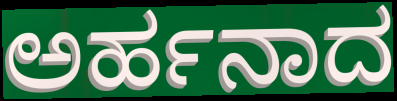
ಅರ್ಹನಾದ